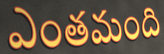
ఎంతమంది